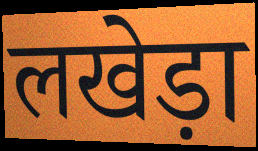
लखेड़ा